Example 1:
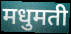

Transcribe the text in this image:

मधुमती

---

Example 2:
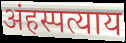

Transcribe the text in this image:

अंहस्पत्याय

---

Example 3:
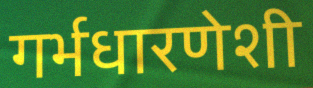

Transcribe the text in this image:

गर्भधारणेशी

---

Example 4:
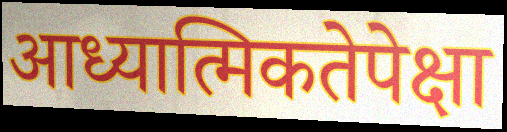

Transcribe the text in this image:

आध्यात्मिकतेपेक्षा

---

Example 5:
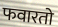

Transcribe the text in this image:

फवारतो